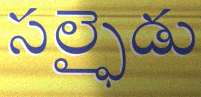
సల్ఫైడు